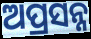
ଅପ୍ରସନ୍ନ